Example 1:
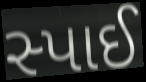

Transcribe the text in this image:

સ્પાઈ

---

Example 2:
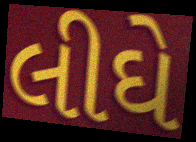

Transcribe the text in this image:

લીઘે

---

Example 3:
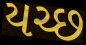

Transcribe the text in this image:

યચ્છ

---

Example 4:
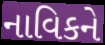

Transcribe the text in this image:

નાવિકને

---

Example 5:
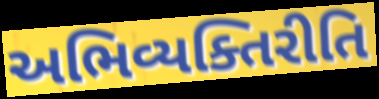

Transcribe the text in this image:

અભિવ્યક્તિરીતિ